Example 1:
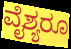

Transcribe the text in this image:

ವೈಶ್ಯರೂ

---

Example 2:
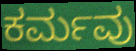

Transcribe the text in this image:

ಕರ್ಮವು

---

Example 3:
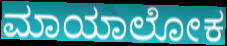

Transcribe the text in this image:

ಮಾಯಾಲೋಕ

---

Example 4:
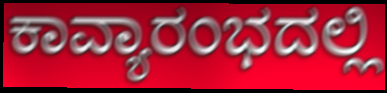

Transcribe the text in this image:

ಕಾವ್ಯಾರಂಭದಲ್ಲಿ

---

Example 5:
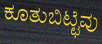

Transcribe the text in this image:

ಕೂತುಬಿಟ್ಟೆವು